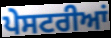
ਪੇਸਟਰੀਆਂ